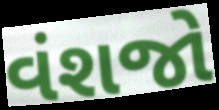
વંશજો